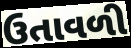
ઉતાવળી